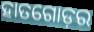
ହାତଗୋଡ଼ର